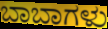
ಬಾಬಾಗಳು